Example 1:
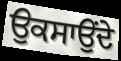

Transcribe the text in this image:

ਉਕਸਾਉਂਦੇ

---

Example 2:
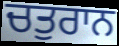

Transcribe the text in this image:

ਚਤੁਰਾਨ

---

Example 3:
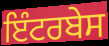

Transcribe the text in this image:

ਇੰਟਰਬੇਸ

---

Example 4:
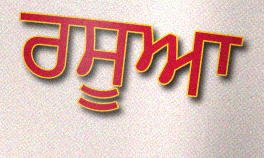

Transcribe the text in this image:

ਰਸੂਆ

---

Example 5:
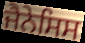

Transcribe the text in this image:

ਜੈਨੇਸਿਸ